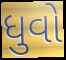
ધુવો